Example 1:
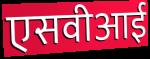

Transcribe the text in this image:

एसवीआई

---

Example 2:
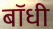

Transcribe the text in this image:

बॉधी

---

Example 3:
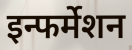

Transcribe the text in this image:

इन्फर्मेशन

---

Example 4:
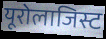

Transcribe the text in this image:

यूरोलाजिस्ट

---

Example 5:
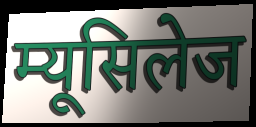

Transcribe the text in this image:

म्यूसिलेज